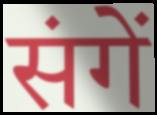
संगें